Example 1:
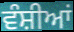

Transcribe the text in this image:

ਵੰਸ਼ੀਆਂ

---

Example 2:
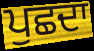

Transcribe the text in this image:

ਪੁਛਦਾ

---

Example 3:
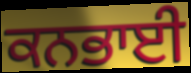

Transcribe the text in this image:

ਕਨਭਾਈ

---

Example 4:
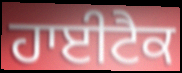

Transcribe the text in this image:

ਹਾਈਟੈਕ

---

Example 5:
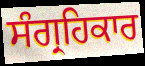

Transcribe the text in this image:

ਸੰਗ੍ਰਹਿਕਾਰ